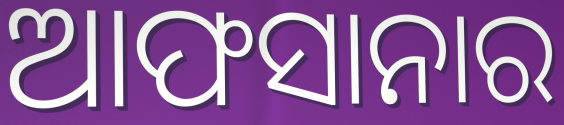
ଆଫସାନାର